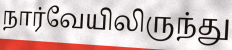
நார்வேயிலிருந்து